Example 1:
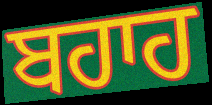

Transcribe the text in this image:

ਬਹਾਹ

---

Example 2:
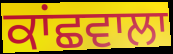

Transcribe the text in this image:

ਕਾਂਛਵਾਲਾ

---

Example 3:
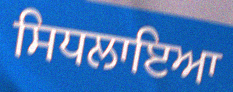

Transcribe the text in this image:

ਸਿਧਲਾਇਆ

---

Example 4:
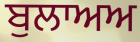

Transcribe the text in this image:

ਬੁਲਾਅਅ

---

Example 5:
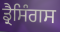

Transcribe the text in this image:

ਡ੍ਰੈਸਿੰਗਸ